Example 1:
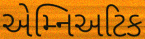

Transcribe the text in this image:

એમ્નિઅટિક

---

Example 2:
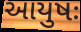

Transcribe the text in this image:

આયુષઃ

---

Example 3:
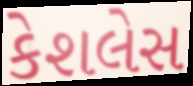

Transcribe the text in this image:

કેશલેસ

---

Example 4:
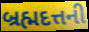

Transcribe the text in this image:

બ્રહ્મદત્તની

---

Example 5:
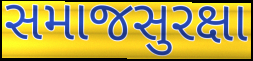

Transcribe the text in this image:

સમાજસુરક્ષા